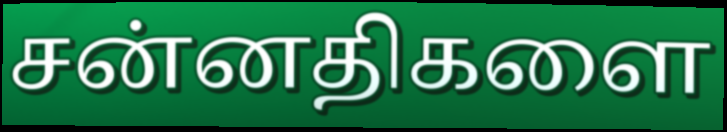
சன்னதிகளை